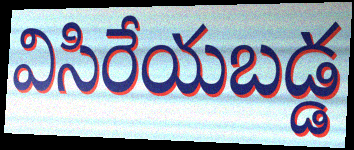
విసిరేయబడ్డ